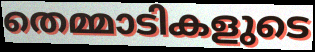
തെമ്മാടികളുടെ